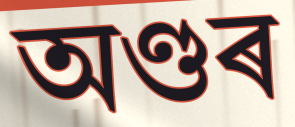
অণ্ডৰ